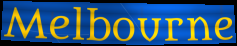
Melbourne